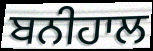
ਬਨੀਹਾਲ